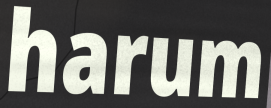
harum